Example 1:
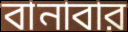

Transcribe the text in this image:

বানাবার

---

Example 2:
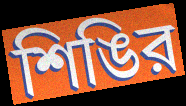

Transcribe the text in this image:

শিঙির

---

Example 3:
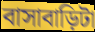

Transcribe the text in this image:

বাসাবাড়িটা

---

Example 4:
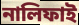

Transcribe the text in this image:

নালিফাই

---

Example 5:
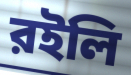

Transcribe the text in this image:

রইলি